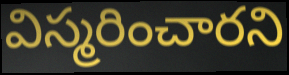
విస్మరించారని